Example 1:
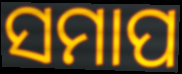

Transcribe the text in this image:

ସମାପ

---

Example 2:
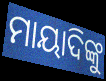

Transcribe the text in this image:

ମାୟାଦିଙ୍କୁ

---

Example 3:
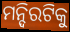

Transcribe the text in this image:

ମନ୍ଦିରଟିକୁ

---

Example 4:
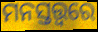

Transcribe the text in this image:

ମନସ୍ତତ୍ତ୍ଵରେ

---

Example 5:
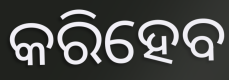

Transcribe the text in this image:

କରିହେବ